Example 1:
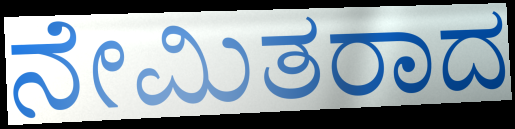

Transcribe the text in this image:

ನೇಮಿತರಾದ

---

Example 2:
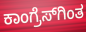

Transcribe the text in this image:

ಕಾಂಗ್ರೆಸ್‌ಗಿಂತ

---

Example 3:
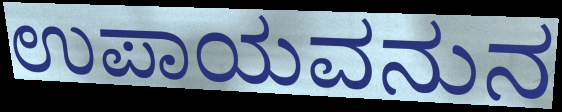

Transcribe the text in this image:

ಉಪಾಯವನುನ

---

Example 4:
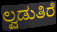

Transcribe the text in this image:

ಲ್ವಡುತಿರೆ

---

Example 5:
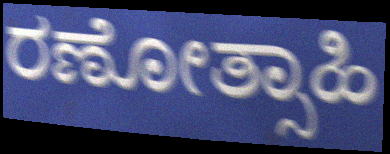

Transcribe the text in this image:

ರಣೋತ್ಸಾಹಿ